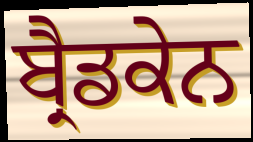
ਬ੍ਰੈਡਕੇਨ